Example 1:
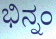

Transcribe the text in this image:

ಭಿನ್ನಂ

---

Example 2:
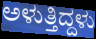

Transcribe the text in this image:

ಅಳುತ್ತಿದ್ದಳು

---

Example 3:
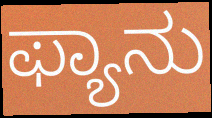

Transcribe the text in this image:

ಫ್ಯಾನು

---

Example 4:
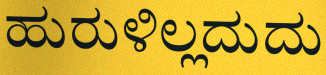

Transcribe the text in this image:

ಹುರುಳಿಲ್ಲದುದು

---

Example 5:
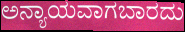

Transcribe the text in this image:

ಅನ್ಯಾಯವಾಗಬಾರದು